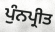
ਪੁੰਨਪ੍ਰੀਤ